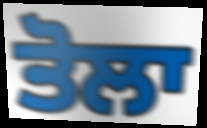
ਤੋਲਾ